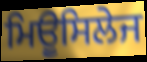
ਮਿਊਸਿਲੇਜ